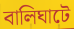
বালিঘাটে